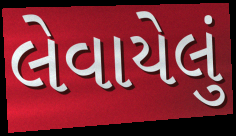
લેવાયેલું